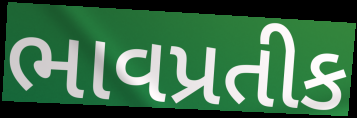
ભાવપ્રતીક